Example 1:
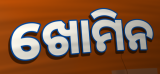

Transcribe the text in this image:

ଖୋମିନ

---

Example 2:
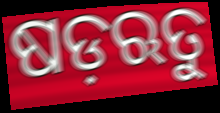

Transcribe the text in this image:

ଷଡ଼ଋତୁ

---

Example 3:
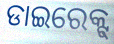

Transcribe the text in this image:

ଡାଇରେକ୍ଟ୍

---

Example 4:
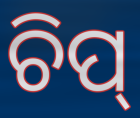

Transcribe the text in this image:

ଚିପ୍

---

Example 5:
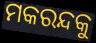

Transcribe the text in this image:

ମକରନ୍ଦକୁ